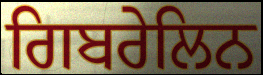
ਗਿਬਰੇਲਿਨ